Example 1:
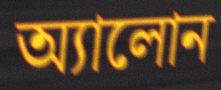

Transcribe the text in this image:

অ্যালোন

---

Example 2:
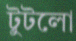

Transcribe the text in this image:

টুটলো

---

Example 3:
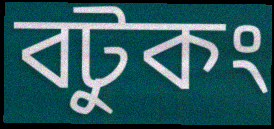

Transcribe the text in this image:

বটুকং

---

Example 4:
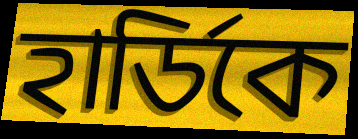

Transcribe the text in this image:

হার্ডিকে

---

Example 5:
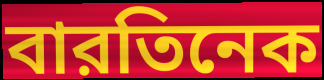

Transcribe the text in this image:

বারতিনেক